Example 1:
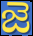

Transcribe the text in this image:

జె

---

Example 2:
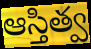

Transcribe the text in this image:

ఆస్తిత్వ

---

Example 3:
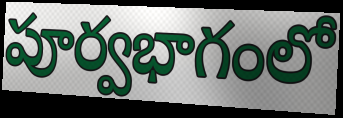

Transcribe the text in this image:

పూర్వభాగంలో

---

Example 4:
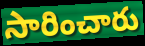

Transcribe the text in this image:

సారించారు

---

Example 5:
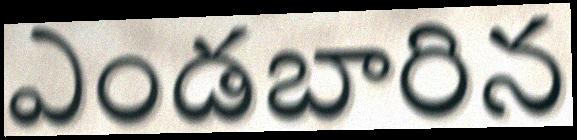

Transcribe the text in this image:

ఎండబారిన